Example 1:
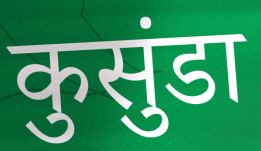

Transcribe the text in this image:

कुसुंडा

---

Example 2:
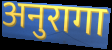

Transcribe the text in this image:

अनुरागा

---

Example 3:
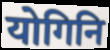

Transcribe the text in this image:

योगिनि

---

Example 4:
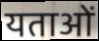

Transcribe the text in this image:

यताओं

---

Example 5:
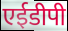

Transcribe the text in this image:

एईडीपी